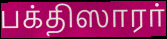
பக்திஸாரர்